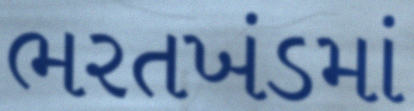
ભરતખંડમાં